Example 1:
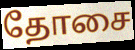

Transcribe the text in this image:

தோசை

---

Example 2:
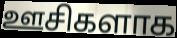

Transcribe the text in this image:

ஊசிகளாக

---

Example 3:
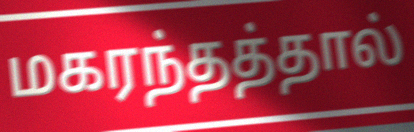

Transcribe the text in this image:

மகரந்தத்தால்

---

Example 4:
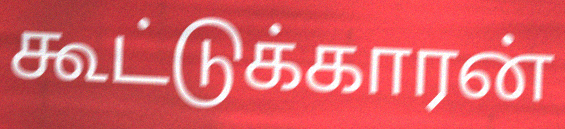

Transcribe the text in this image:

கூட்டுக்காரன்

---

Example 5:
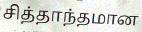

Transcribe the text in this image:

சித்தாந்தமான